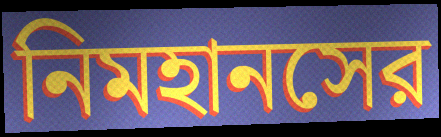
নিমহানসের